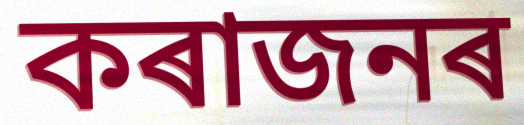
কৰাজনৰ